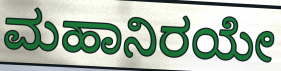
ಮಹಾನಿರಯೇ